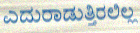
ಎದುರಾಡುತ್ತಿರಲಿಲ್ಲ